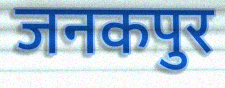
जनकपुर